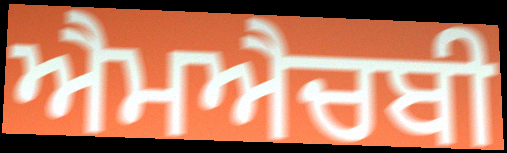
ਐਮਐਚਬੀ